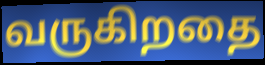
வருகிறதை